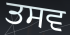
ਤਸਵ